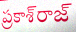
ప్రకాశ్‌రాజ్